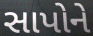
સાપોને